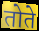
तोते